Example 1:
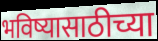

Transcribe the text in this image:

भविष्यासाठीच्या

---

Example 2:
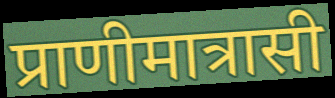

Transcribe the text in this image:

प्राणीमात्रासी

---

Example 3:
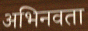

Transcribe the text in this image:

अभिनवता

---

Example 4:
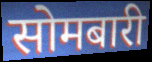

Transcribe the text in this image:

सोमबारी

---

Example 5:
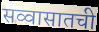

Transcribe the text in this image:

सव्वासातची